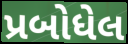
પ્રબોધેલ